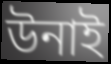
উনাই